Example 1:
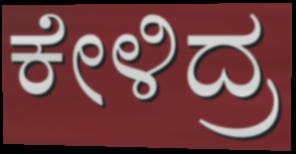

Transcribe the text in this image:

ಕೇಳಿದ್ರ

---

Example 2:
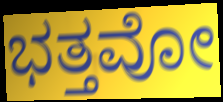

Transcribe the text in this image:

ಭತ್ತವೋ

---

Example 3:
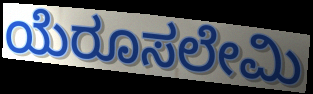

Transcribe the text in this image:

ಯೆರೂಸಲೇಮಿ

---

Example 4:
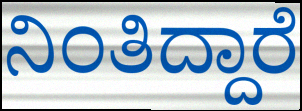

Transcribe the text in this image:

ನಿಂತಿದ್ದಾರೆ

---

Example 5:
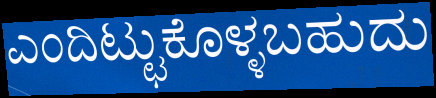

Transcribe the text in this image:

ಎಂದಿಟ್ಟುಕೊಳ್ಳಬಹುದು